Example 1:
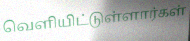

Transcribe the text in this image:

வெளியிட்டுள்ளார்கள்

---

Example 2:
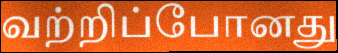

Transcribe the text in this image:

வற்றிப்போனது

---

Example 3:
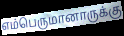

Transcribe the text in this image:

எம்பெருமானாருக்கு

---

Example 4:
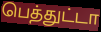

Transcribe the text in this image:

பெத்துட்டா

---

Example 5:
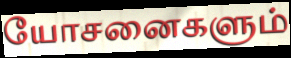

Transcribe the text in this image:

யோசனைகளும்